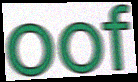
oof